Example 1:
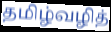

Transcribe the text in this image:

தமிழ்வழித்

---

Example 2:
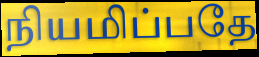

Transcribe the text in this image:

நியமிப்பதே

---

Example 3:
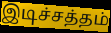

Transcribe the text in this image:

இடிச்சத்தம்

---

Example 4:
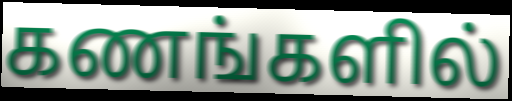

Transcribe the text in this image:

கணங்களில்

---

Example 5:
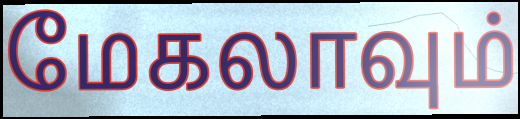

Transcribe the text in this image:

மேகலாவும்